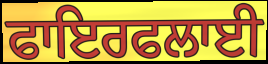
ਫਾਇਰਫਲਾਈ